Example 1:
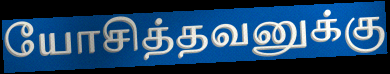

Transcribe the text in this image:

யோசித்தவனுக்கு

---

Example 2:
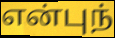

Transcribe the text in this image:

என்புந்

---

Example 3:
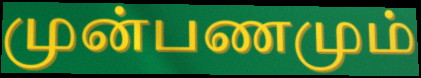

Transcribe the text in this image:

முன்பணமும்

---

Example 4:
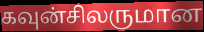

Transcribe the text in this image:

கவுன்சிலருமான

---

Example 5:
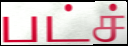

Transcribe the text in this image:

பட்ச்